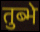
तुब्भे